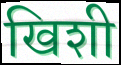
खिशी